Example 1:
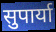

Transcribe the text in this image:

सुपार्या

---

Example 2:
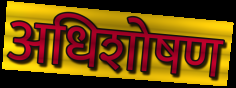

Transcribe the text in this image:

अधिशोषण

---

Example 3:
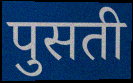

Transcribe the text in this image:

पुसती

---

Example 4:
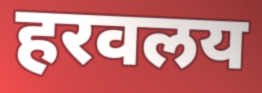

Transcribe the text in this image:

हरवलय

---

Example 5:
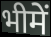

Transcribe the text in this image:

भीमें